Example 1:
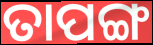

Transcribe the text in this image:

ତାପଙ୍ଗ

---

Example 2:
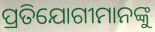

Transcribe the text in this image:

ପ୍ରତିଯୋଗୀମାନଙ୍କୁ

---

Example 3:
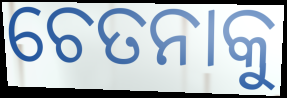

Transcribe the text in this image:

ଚେତନାକୁ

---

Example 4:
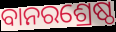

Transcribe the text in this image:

ବାନରଶ୍ରେଷ୍ଠ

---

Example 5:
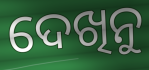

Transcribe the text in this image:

ଦେଖିନୁ